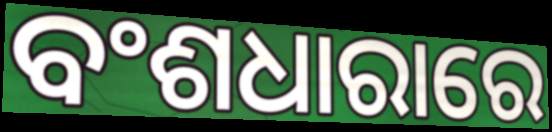
ବଂଶଧାରାରେ